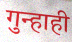
गुन्हाही